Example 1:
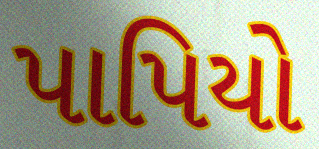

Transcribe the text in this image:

પાપિયો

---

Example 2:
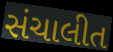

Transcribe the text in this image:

સંચાલીત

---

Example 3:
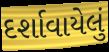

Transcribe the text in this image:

દર્શાવાયેલું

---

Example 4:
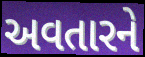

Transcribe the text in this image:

અવતારને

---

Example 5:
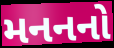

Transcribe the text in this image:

મનનનો